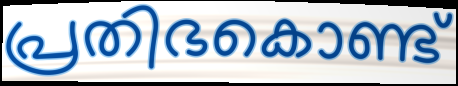
പ്രതിഭകൊണ്ട്